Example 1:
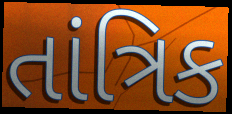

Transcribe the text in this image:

તાંત્રિક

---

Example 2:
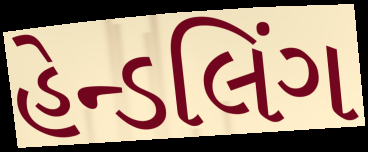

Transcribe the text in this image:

હેન્ડલિંગ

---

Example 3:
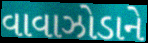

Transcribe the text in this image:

વાવાઝોડાને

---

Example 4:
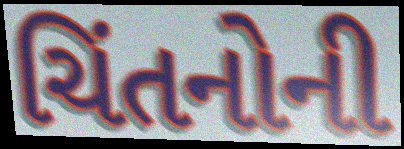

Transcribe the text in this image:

ચિંતનોની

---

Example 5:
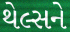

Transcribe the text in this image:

થેલ્સને